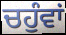
ਚਹੁੰਵਾਂ